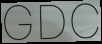
GDC